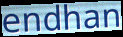
endhan